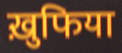
ख़ुफिया